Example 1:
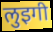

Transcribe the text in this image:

लुइगी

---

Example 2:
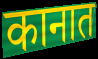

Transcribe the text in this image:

कानात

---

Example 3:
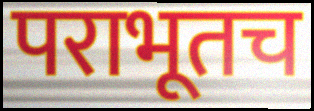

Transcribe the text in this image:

पराभूतच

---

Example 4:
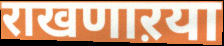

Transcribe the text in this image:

राखणाऱया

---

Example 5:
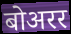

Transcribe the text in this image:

बोअरर